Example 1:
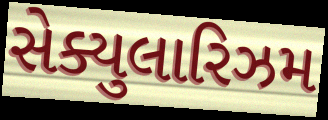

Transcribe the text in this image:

સેક્યુલારિઝમ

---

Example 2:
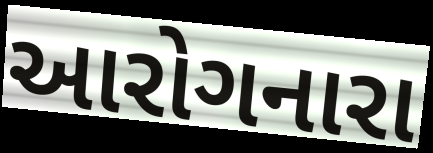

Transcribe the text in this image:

આરોગનારા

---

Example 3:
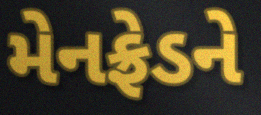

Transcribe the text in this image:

મેનફ્રેડને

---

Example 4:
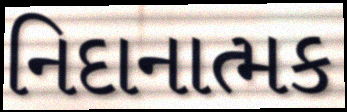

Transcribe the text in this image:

નિદાનાત્મક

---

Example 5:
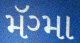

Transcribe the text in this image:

મૅગ્મા